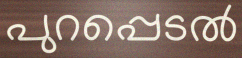
പുറപ്പെടൽ